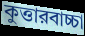
কুত্তারবাচ্চা